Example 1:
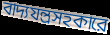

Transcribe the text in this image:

বাদ্যযন্ত্রসহকারে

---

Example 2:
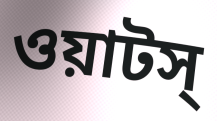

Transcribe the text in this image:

ওয়াটস্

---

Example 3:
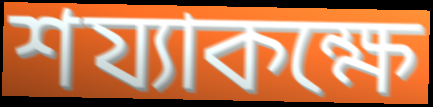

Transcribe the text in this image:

শয্যাকক্ষে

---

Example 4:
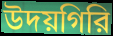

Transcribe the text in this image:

উদয়গিরি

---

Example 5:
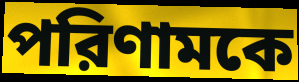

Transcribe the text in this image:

পরিণামকে